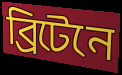
ব্রিটেনে